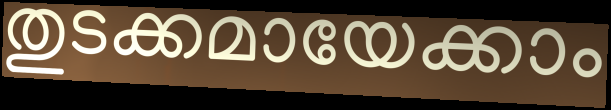
തുടക്കമായേക്കാം